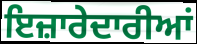
ਇਜ਼ਾਰੇਦਾਰੀਆਂ